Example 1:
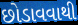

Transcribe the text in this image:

છોડાવવાથી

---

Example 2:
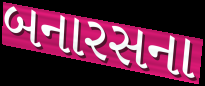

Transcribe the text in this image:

બનારસના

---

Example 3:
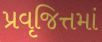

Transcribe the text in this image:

પ્રવૃજિત્તમાં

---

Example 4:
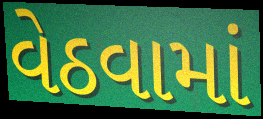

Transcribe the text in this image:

વેઠવામાં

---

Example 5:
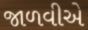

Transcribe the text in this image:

જાળવીએ